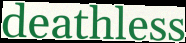
deathless